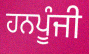
ਹਨਪੂੰਜੀ